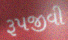
રૂપજીવી